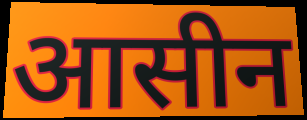
आसीन